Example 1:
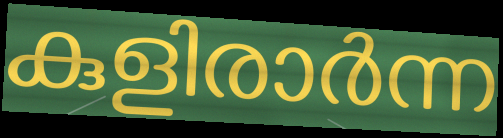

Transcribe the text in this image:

കുളിരാർന്ന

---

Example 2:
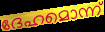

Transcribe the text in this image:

ദേഹമൊന്ന്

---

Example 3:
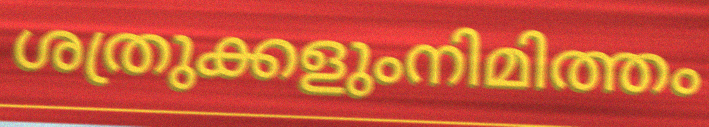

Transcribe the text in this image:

ശത്രുക്കളുംനിമിത്തം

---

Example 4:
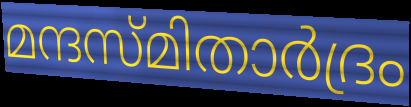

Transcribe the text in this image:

മന്ദസ്മിതാർദ്രം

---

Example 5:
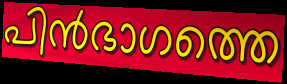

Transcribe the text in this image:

പിൻഭാഗത്തെ